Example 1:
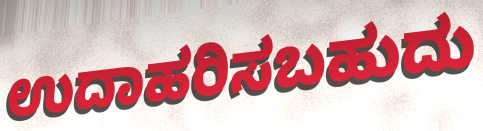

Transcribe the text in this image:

ಉದಾಹರಿಸಬಹುದು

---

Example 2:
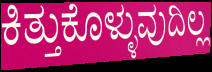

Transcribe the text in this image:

ಕಿತ್ತುಕೊಳ್ಳುವುದಿಲ್ಲ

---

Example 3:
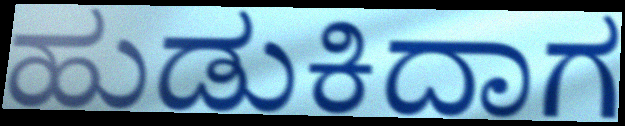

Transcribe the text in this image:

ಹುಡುಕಿದಾಗ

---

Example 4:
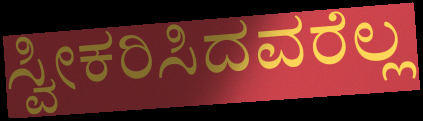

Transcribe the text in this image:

ಸ್ವೀಕರಿಸಿದವರೆಲ್ಲ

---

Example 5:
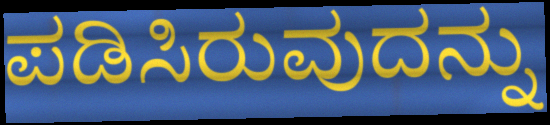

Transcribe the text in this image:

ಪಡಿಸಿರುವುದನ್ನು